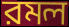
রমল